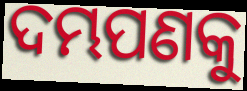
ଦମ୍ଭପଣକୁ